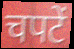
चपटें